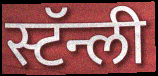
स्टॅन्ली